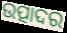
ଉତ୍ପାଦର